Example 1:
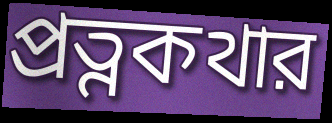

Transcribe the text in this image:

প্রত্নকথার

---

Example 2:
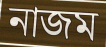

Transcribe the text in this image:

নাজম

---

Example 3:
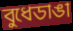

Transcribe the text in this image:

বুধেডাঙা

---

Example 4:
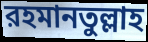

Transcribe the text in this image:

রহমানতুল্লাহ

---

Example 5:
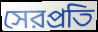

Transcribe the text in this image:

সেরপ্রতি